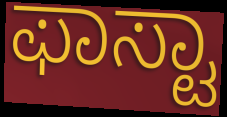
ಫಾಸ್ಟಾ